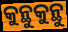
କୁନ୍ଥୁକୁନ୍ଥୁ